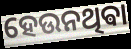
ହେଉନଥିଵା